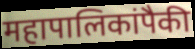
महापालिकांपैकी